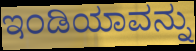
ಇಂಡಿಯಾವನ್ನು